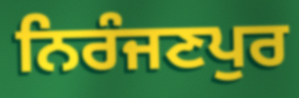
ਨਿਰੰਜਣਪੁਰ